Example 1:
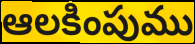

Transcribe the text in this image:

ఆలకింపుము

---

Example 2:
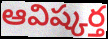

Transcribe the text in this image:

ఆవిష్కర్త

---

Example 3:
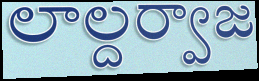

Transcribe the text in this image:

లాల్దర్వాజ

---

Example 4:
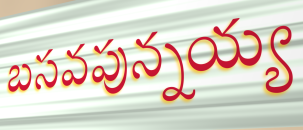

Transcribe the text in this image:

బసవపున్నయ్య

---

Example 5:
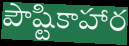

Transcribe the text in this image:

పౌష్టికాహార